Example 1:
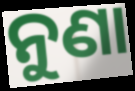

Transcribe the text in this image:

ନୁଣା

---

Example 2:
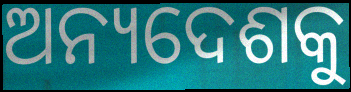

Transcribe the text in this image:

ଅନ୍ୟଦେଶକୁ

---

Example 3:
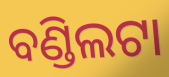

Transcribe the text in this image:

ବଣ୍ଡିଲଟା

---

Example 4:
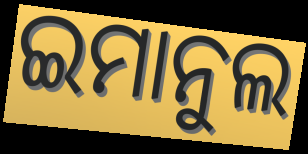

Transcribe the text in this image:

ଇମାନୁଲ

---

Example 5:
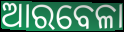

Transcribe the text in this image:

ଆରବେଳା